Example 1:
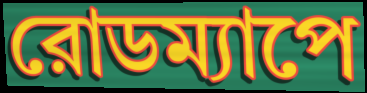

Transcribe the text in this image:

রোডম্যাপে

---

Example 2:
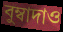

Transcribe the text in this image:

বুম্বাদাও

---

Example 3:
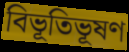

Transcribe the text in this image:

বিভূতিভূষণ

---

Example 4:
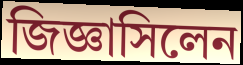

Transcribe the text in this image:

জিজ্ঞাসিলেন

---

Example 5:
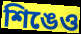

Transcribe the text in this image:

শিঙেও